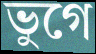
ভুগে